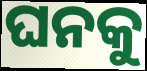
ଘନକୁ